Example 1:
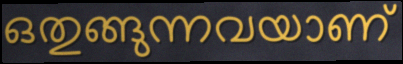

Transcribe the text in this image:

ഒതുങ്ങുന്നവയാണ്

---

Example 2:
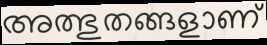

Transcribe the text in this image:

അത്ഭുതങ്ങളാണ്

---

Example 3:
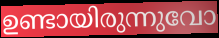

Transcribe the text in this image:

ഉണ്ടായിരുന്നുവോ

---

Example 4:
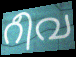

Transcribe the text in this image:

റീവ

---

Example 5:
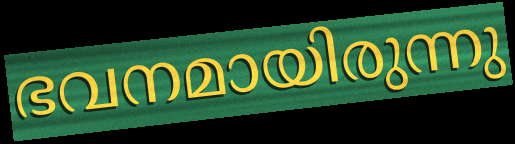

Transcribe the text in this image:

ഭവനമായിരുന്നു